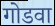
गोडवा